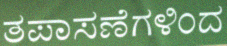
ತಪಾಸಣೆಗಳಿಂದ